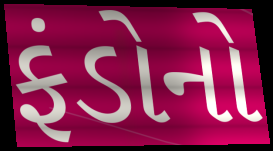
ફંડોનો